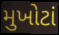
મુખોટાં